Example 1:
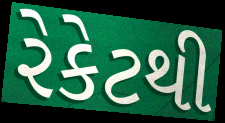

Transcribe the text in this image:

રેકેટથી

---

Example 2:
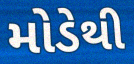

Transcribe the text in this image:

મોડેથી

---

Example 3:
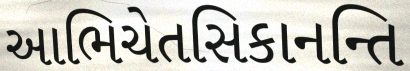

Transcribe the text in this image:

આભિચેતસિકાનન્તિ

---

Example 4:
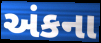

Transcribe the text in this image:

અંકના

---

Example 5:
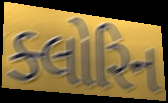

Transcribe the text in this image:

ક્લોરિન